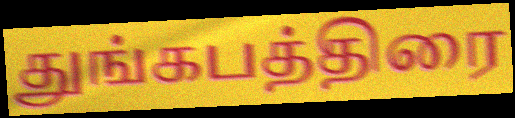
துங்கபத்திரை